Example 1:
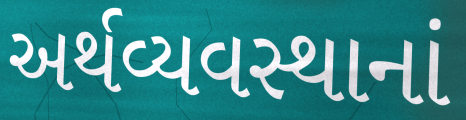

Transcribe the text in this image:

અર્થવ્યવસ્થાનાં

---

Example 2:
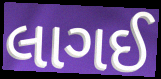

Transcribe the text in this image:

લાગઈ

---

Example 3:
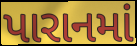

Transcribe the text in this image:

પારાનમાં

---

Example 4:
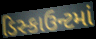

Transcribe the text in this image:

ડિસ્કાઉન્ટમાં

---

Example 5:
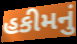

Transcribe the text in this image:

હકીમનું